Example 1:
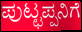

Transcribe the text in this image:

ಪುಟ್ಟಪ್ಪನಿಗೆ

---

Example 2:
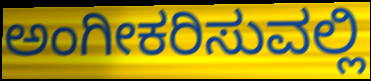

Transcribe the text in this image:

ಅಂಗೀಕರಿಸುವಲ್ಲಿ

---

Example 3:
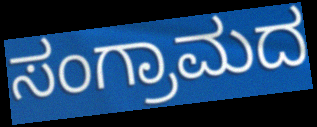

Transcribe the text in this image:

ಸಂಗ್ರಾಮದ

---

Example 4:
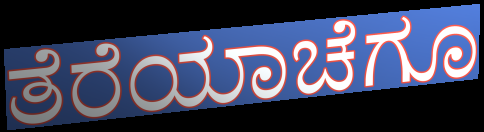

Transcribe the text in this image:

ತೆರೆಯಾಚೆಗೂ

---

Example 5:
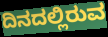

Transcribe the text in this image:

ದಿನದಲ್ಲಿರುವ